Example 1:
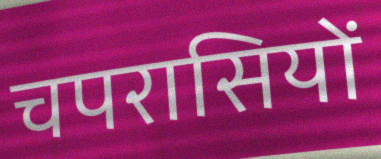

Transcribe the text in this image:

चपरासियों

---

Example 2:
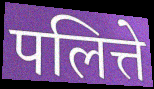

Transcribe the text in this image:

पलित्ते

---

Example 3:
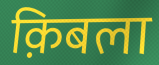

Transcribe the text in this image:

क़िबला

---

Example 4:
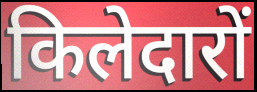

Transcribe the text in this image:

किलेदारों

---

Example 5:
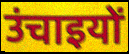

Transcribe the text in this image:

उंचाइयों